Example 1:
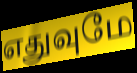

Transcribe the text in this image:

எதுவுமே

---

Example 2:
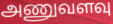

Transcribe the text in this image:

அணுவளவு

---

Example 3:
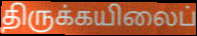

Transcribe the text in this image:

திருக்கயிலைப்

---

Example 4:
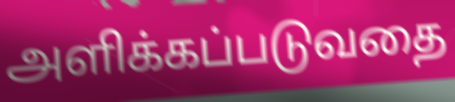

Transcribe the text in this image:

அளிக்கப்படுவதை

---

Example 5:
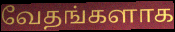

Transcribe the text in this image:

வேதங்களாக